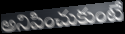
అనిపించుకుంటే